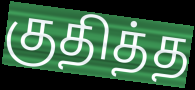
குதித்த